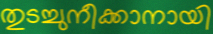
തുടച്ചുനീക്കാനായി